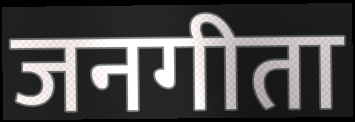
जनगीता